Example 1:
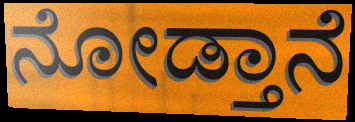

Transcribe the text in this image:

ನೋಡ್ತಾನೆ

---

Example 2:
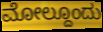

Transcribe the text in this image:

ಮೋಲ್ದೂಂದು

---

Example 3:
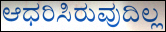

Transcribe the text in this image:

ಆಧರಿಸಿರುವುದಿಲ್ಲ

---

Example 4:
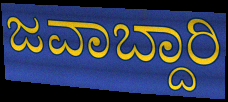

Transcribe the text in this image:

ಜವಾಬ್ದಾರಿ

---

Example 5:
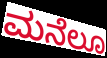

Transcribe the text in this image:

ಮನೆಲೂ